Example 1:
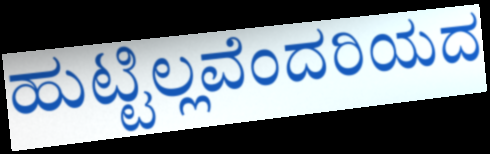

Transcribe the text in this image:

ಹುಟ್ಟಿಲ್ಲವೆಂದರಿಯದ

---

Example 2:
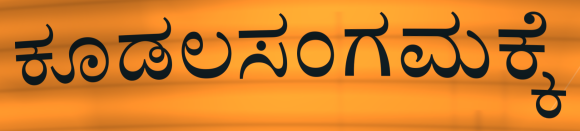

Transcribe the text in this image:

ಕೂಡಲಸಂಗಮಕ್ಕೆ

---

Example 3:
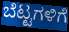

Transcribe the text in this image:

ಬೆಟ್ಟಗಳಿಗೆ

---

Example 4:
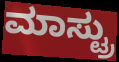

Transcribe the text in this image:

ಮಾಸ್ಟ್ರು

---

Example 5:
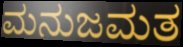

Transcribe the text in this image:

ಮನುಜಮತ